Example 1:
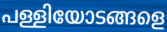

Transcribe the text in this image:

പള്ളിയോടങ്ങളെ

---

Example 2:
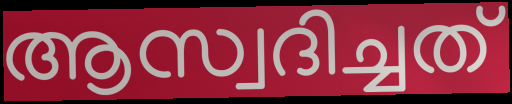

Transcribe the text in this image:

ആസ്വദിച്ചത്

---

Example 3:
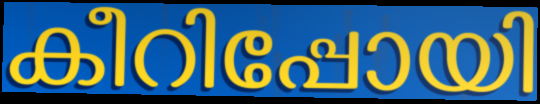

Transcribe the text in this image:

കീറിപ്പോയി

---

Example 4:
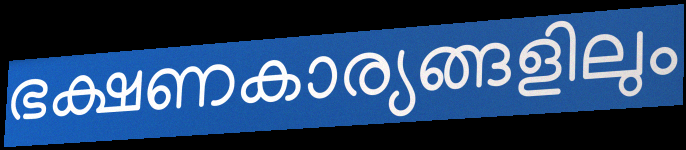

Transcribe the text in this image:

ഭക്ഷണകാര്യങ്ങളിലും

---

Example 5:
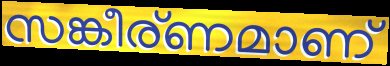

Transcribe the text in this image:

സങ്കീര്ണമാണ്